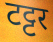
टट्टर